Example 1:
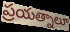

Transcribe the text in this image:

ప్రయత్నాలూ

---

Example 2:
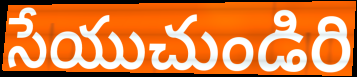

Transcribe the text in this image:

సేయుచుండిరి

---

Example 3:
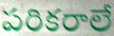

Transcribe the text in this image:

పరికరాలే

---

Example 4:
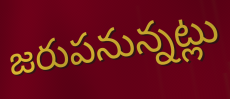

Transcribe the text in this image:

జరుపనున్నట్లు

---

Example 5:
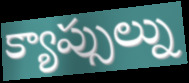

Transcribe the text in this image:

క్యాప్సుల్ను